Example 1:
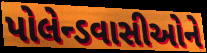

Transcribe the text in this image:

પોલેન્ડવાસીઓને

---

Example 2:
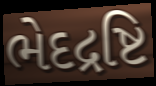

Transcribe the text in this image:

ભેદદ્રષ્ટિ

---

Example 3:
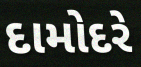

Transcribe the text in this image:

દામોદરે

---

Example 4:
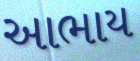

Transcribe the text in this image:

આભાય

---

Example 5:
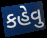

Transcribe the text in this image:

કહેવુ